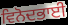
ਵਿਨੋਦਭਾਈ